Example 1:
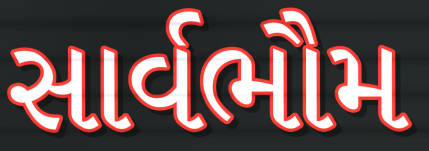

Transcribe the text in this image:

સાર્વભૌમ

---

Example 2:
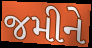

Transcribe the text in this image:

જમીને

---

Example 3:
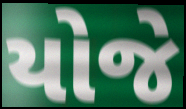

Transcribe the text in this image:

યોજે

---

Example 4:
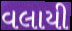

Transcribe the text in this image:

વલાયી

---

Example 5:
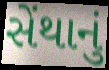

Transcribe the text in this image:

સેંથાનું